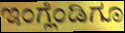
ಇಂಗ್ಲೆಂಡಿಗೂ